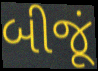
બીજૂં